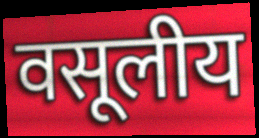
वसूलीय